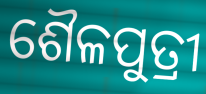
ଶୈଳପୁତ୍ରୀ